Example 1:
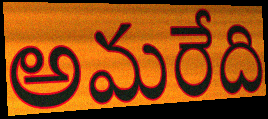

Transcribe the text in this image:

అమరేది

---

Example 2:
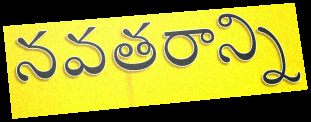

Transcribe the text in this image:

నవతరాన్ని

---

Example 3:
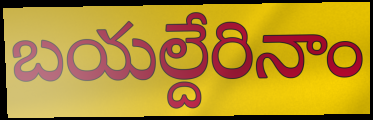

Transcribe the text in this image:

బయల్దేరినాం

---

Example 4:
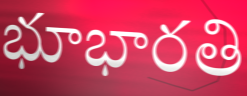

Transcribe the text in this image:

భూభారతి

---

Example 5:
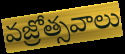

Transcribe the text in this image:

వజ్రోత్సవాలు